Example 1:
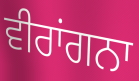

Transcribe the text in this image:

ਵੀਰਾਂਗਨਾ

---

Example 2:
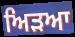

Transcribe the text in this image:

ਅਿੜਆ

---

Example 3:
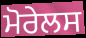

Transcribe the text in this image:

ਮੋਰੇਲਸ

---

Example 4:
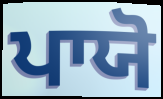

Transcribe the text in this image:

ਪਾਯੋ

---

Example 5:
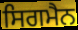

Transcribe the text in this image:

ਸਿਗਮੈਨ